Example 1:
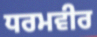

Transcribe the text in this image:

ਧਰਮਵੀਰ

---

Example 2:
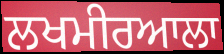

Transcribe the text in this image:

ਲਖਮੀਰਆਲਾ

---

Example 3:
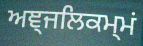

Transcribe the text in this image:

ਅਞ੍ਜਲਿਕਮ੍ਮਂ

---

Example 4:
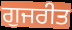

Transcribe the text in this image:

ਗੁਜਰੀਤ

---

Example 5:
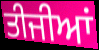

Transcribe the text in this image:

ਤੀਜੀਆਂ